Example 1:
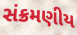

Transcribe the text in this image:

સંક્રમણીય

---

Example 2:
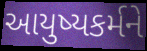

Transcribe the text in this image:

આયુષ્યકર્મને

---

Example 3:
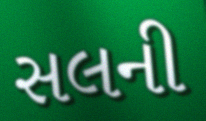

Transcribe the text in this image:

સલની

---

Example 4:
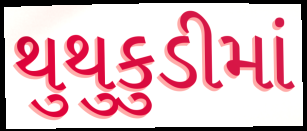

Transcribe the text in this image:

થુથુકુડીમાં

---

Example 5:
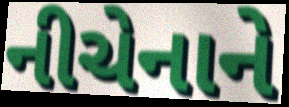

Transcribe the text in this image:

નીચેનાને